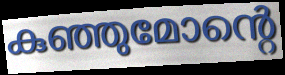
കുഞ്ഞുമോന്റെ